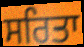
ਸਰਿਤਾ